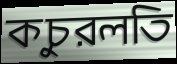
কচুরলতি